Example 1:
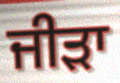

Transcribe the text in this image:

ਜੀੜਾ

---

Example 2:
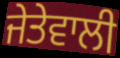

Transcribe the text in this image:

ਜੇਤੇਵਾਲੀ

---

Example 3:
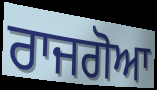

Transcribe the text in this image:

ਰਾਜਗੋਆ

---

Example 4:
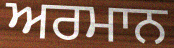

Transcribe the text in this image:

ਅਰਮਾਨ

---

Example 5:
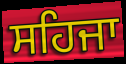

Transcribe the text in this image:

ਸਹਿਜਾ